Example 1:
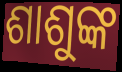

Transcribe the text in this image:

ଶାଶୁଙ୍କ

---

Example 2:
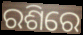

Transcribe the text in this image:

ରଶିରେ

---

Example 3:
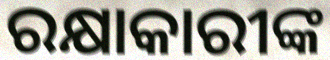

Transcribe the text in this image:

ରକ୍ଷାକାରୀଙ୍କ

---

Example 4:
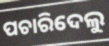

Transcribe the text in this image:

ପଚାରିଦେଲୁ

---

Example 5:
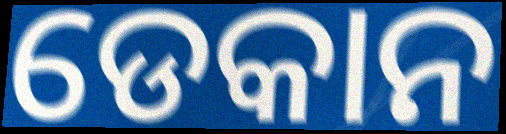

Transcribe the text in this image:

ଡେକାନ